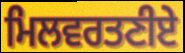
ਮਿਲਵਰਤਣੀਏ